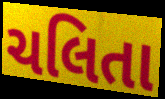
ચલિતા